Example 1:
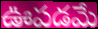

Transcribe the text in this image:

ఊపడమే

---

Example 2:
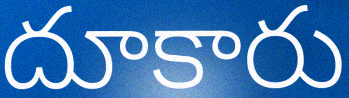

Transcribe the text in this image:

దూకారు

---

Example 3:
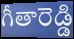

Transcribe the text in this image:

గీతారెడ్డి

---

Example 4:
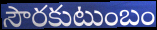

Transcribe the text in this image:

సౌరకుటుంబం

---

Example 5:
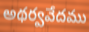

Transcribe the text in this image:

అథర్వవేదము